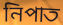
নিপাত